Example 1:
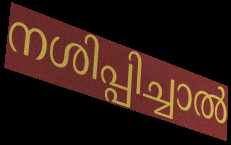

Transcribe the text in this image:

നശിപ്പിച്ചാൽ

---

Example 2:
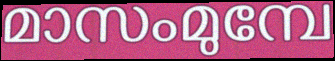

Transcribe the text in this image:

മാസംമുമ്പേ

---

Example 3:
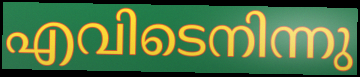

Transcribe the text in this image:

എവിടെനിന്നു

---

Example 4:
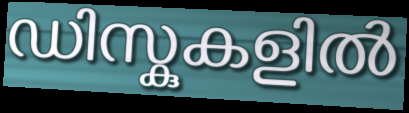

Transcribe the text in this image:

ഡിസ്കുകളിൽ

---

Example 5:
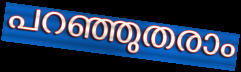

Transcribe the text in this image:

പറഞ്ഞുതരാം